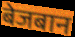
बेजबान